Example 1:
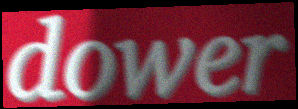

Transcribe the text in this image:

dower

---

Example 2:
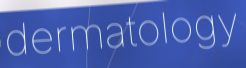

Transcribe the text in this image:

dermatology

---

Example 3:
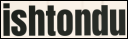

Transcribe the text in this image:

ishtondu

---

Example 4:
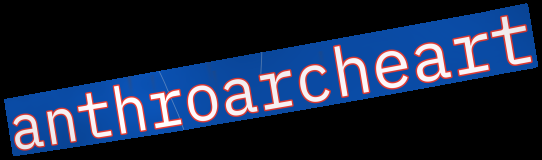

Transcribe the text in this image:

anthroarcheart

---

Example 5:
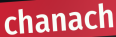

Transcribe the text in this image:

chanach